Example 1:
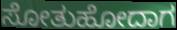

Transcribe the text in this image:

ಸೋತುಹೋದಾಗ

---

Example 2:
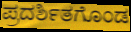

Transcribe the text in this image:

ಪ್ರದರ್ಶಿತಗೊಂಡ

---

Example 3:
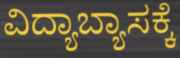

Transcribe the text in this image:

ವಿದ್ಯಾಬ್ಯಾಸಕ್ಕೆ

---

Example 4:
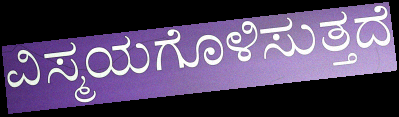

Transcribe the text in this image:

ವಿಸ್ಮಯಗೊಳಿಸುತ್ತದೆ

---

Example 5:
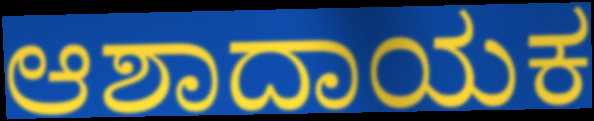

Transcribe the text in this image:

ಆಶಾದಾಯಕ